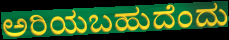
ಅರಿಯಬಹುದೆಂದು